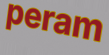
peram